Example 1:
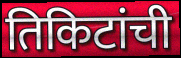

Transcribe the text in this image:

तिकिटांची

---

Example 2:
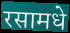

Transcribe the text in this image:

रसामधे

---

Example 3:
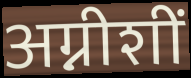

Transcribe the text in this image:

अग्नीशीं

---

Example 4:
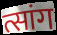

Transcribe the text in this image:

त्सांग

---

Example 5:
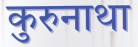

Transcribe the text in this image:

कुरुनाथा